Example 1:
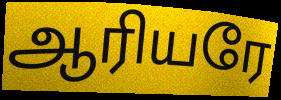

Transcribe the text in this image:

ஆரியரே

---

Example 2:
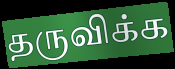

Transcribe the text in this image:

தருவிக்க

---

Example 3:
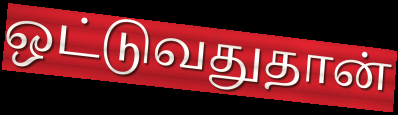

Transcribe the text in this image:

ஒட்டுவதுதான்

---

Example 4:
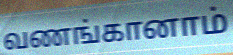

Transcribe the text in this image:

வணங்கானாம்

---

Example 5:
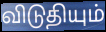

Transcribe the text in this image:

விடுதியும்